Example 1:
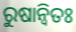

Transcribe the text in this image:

ରୁଷାନ୍ଵିତଃ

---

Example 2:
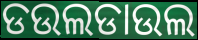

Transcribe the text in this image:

ଡଉଲଡାଉଲ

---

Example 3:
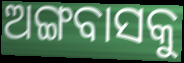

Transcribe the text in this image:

ଅଙ୍ଗବାସକୁ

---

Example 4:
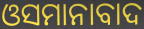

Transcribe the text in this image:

ଓସମାନାବାଦ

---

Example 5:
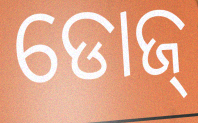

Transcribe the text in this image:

ଡୋଜ୍